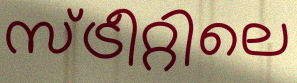
സ്ട്രീറ്റിലെ